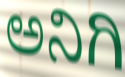
ಅನಿಗಿ